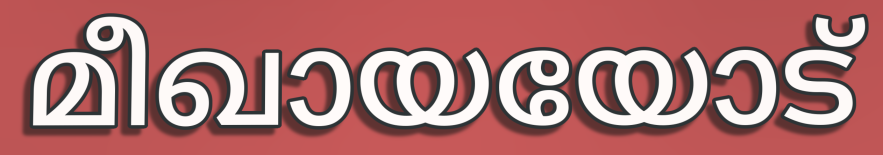
മീഖായയോട്